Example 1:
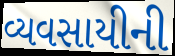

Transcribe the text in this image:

વ્યવસાયીની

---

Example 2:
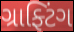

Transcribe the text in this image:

ગ્રાફ્ટિંગ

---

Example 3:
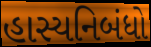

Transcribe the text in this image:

હાસ્યનિબંધો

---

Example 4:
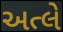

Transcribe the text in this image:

અત્લે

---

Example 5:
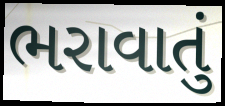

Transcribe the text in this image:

ભરાવાતું